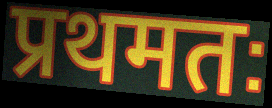
प्रथमतः